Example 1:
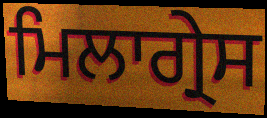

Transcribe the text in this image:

ਮਿਲਾਗ੍ਰੇਸ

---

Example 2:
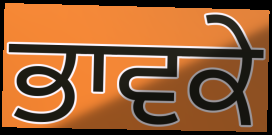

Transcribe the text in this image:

ਭਾਵਕੇ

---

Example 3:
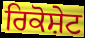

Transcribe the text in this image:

ਰਿਕੋਸ਼ੇਟ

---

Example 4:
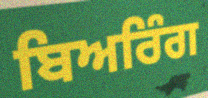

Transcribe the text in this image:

ਬਿਅਰਿੰਗ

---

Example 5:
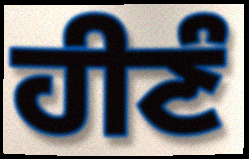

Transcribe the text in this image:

ਹੀਣੰ